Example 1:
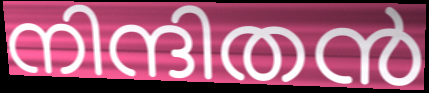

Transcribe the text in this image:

നിന്ദിതൻ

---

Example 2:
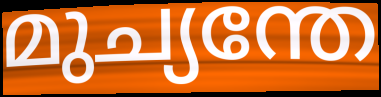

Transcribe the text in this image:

മുച്യന്തേ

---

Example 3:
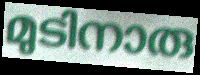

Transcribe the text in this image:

മുടിനാരു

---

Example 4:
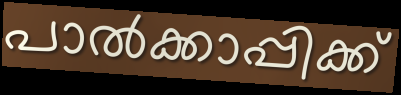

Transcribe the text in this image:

പാൽക്കാപ്പിക്ക്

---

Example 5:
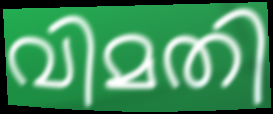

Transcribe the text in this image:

വിമതി